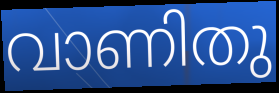
വാണിതു